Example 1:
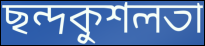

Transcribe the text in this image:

ছন্দকুশলতা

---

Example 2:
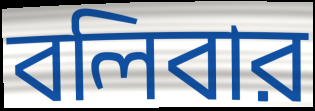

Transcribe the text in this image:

বলিবার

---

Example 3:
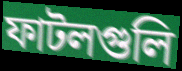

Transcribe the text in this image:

ফাটলগুলি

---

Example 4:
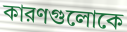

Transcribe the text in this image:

কারণগুলোকে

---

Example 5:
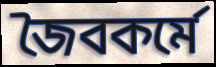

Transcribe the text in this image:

জৈবকর্মে